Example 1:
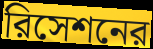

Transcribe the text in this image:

রিসেশনের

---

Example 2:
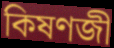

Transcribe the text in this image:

কিষণজী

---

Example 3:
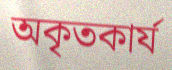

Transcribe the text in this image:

অকৃতকার্য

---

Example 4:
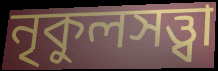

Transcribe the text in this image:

নৃকুলসত্ত্বা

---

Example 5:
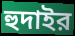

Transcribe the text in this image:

হুদাইর